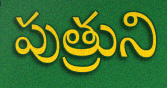
పుత్రుని